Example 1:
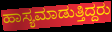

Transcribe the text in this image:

ಹಾಸ್ಯಮಾಡುತ್ತಿದ್ದರು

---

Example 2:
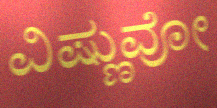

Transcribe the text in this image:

ವಿಷ್ಣುವೋ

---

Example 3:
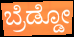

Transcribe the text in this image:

ಬ್ರೆಡ್ಡೋ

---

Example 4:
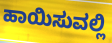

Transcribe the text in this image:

ಹಾಯಿಸುವಲ್ಲಿ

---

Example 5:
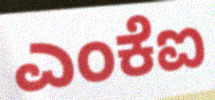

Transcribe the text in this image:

ಎಂಕೆಐ